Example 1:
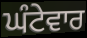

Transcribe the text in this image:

ਘੰਟੇਵਾਰ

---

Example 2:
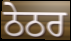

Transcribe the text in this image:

ਠੇਠਰ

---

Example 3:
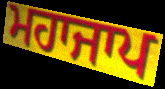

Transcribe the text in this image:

ਮਹਾਜਾਪ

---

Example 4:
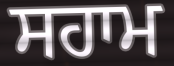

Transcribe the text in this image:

ਸਹਾਮ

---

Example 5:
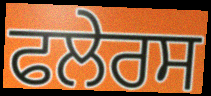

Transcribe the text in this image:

ਫਲੇਰਸ